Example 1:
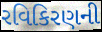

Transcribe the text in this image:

રવિકિરણની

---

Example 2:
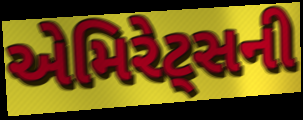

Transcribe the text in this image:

એમિરેટ્સની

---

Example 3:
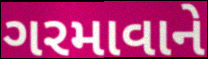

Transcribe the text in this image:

ગરમાવાને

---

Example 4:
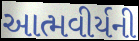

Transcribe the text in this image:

આત્મવીર્યની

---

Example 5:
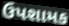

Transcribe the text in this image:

ઉપશામક